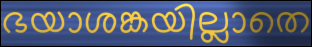
ഭയാശങ്കയില്ലാതെ